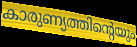
കാരുണ്യത്തിന്റെയും